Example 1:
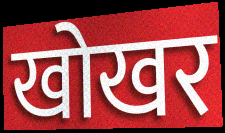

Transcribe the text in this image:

खोखर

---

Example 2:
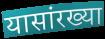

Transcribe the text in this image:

यासांरख्या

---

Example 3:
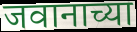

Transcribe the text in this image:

जवानाच्या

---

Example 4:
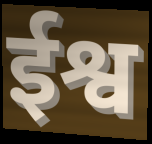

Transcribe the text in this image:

ईश्व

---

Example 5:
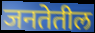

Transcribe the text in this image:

जनतेतील